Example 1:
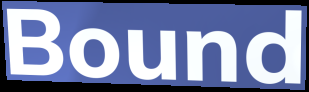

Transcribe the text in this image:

Bound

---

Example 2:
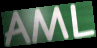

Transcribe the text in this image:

AML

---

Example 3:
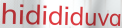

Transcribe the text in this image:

hidididuva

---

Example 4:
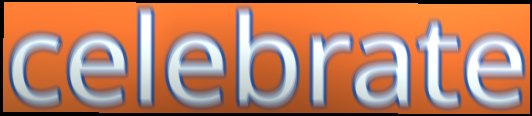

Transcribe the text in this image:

celebrate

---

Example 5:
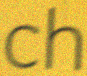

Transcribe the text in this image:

ch